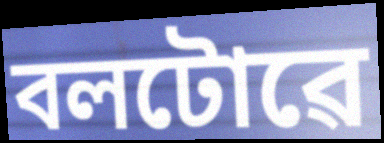
বলটোৱে